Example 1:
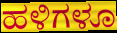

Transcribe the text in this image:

ಹಳಿಗಳೂ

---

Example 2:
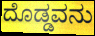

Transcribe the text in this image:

ದೊಡ್ಡವನು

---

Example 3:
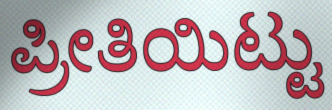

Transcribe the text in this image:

ಪ್ರೀತಿಯಿಟ್ಟು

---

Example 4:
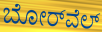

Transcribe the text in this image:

ಬೋರ್‌ವೆಲ್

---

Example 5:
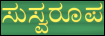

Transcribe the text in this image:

ಸುಸ್ವರೂಪ